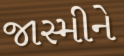
જાસ્મીને